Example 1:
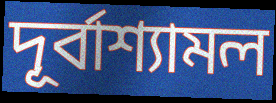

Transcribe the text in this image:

দূর্বাশ্যামল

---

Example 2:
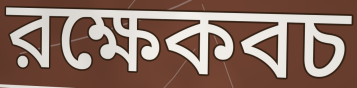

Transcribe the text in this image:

রক্ষেকবচ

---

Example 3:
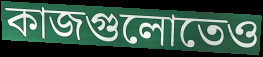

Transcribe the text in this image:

কাজগুলোতেও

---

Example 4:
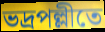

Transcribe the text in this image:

ভদ্রপল্লীতে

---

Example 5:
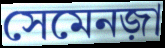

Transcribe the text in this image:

সেমেনজ়া